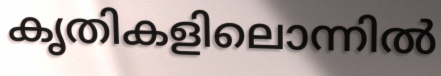
കൃതികളിലൊന്നിൽ